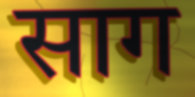
साग